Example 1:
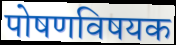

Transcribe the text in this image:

पोषणविषयक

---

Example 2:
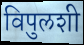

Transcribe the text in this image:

विपुलशी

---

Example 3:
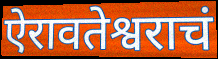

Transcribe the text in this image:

ऐरावतेश्वराचं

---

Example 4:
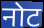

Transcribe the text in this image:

नोट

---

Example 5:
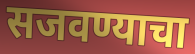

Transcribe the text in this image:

सजवण्याचा